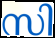
സി